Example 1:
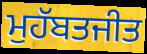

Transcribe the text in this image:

ਮੁਹੱਬਤਜੀਤ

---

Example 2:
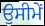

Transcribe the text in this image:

ਉਸੀਮੇਂ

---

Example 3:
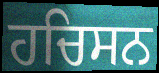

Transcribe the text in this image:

ਹਚਿਸਨ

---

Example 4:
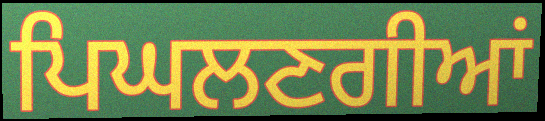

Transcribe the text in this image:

ਪਿਘਲਣਗੀਆਂ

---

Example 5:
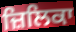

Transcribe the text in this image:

ਜ਼ਿਲਿਕਾ